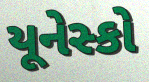
યૂનેસ્કો